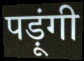
पड़ूंगी